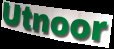
Utnoor